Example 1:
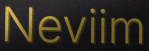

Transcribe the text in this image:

Neviim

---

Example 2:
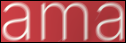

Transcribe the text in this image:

ama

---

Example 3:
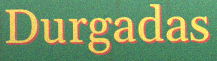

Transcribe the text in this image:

Durgadas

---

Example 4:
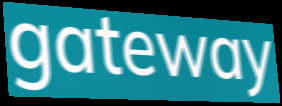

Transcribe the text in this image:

gateway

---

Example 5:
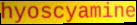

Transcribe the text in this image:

hyoscyamine